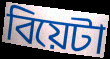
বিয়েটা